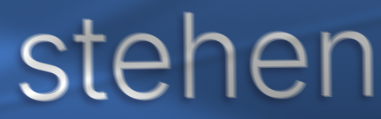
stehen